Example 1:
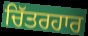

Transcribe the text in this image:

ਚਿੱਤਰਹਾਰ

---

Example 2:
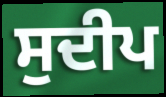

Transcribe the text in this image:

ਸੁਦੀਪ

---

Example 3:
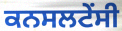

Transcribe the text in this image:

ਕਨਸਲਟੇਂਸੀ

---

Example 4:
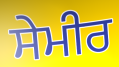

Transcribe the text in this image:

ਸੇਮੀਰ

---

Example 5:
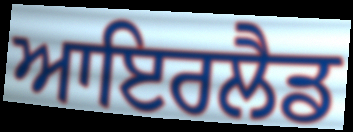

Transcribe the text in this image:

ਆਇਰਲੈਡ